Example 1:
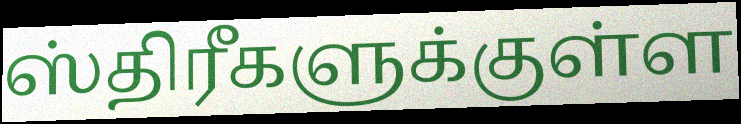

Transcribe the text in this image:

ஸ்திரீகளுக்குள்ள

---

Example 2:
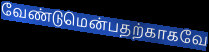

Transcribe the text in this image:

வேண்டுமென்பதற்காகவே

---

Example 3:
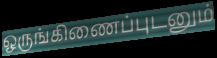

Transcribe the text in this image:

ஒருங்கிணைப்புடனும்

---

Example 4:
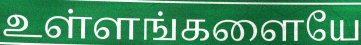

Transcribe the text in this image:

உள்ளங்களையே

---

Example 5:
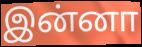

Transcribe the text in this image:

இன்னா